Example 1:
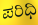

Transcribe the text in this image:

ಪರಿಧಿ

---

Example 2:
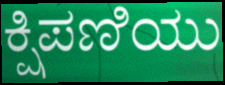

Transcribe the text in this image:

ಕ್ಷಿಪಣಿಯು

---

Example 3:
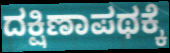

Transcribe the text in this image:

ದಕ್ಷಿಣಾಪಥಕ್ಕೆ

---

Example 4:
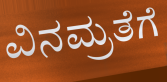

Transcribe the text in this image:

ವಿನಮ್ರತೆಗೆ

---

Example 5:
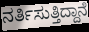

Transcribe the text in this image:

ನರ್ತಿಸುತ್ತಿದ್ದಾನೆ